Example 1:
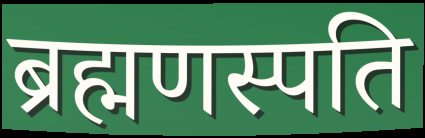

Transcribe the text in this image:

ब्रह्मणस्पति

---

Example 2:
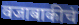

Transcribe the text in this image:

वजाबाकीचं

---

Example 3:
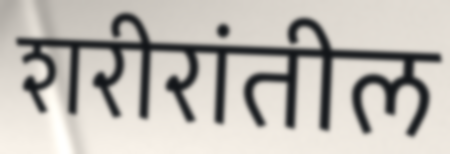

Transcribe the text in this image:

शरीरांतील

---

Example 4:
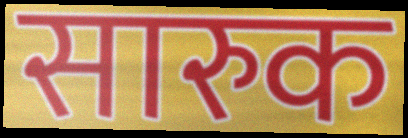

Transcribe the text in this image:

सारुक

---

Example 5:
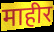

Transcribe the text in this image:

माहीर